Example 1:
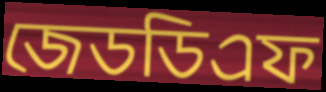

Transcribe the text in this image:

জেডডিএফ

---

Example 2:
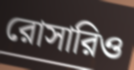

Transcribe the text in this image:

রোসারিও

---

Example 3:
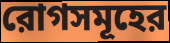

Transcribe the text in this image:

রোগসমূহের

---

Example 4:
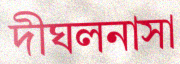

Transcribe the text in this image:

দীঘলনাসা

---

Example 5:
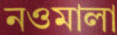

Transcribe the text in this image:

নওমালা